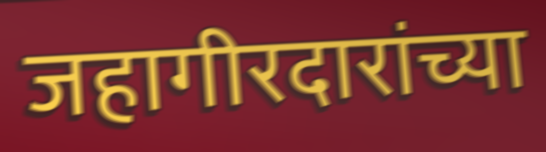
जहागीरदारांच्या